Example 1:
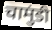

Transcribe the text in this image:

चामुंडी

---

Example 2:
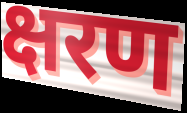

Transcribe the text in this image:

क्षरण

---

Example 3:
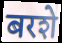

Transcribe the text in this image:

बरशे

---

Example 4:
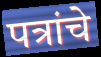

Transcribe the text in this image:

पत्रांचे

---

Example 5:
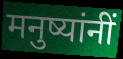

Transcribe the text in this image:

मनुष्यांनीं